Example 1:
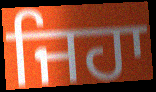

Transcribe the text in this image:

ਜਿਹਾ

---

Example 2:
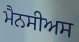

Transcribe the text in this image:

ਮੈਨਸੀਅਸ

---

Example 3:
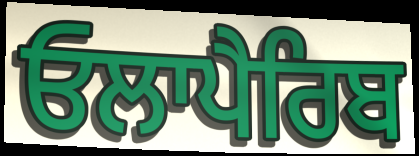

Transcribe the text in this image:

ਓਲਾਪੈਰਿਬ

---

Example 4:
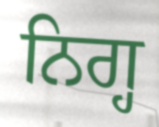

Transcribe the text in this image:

ਨਿਗ੍ਹ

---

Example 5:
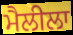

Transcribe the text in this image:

ਮੈਲੀਲਾ